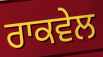
ਰਾਕਵੇਲ